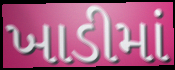
ખાડીમાં